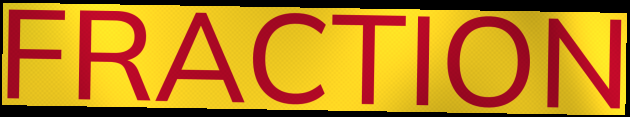
FRACTION